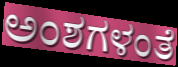
ಅಂಶಗಳಂತೆ